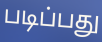
படிப்பது